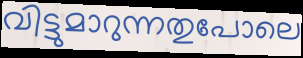
വിട്ടുമാറുന്നതുപോലെ